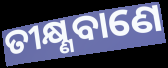
ତୀକ୍ଷ୍ଣବାଣେ